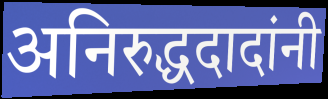
अनिरुद्धदादांनी